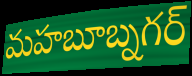
మహబూబ్నగర్